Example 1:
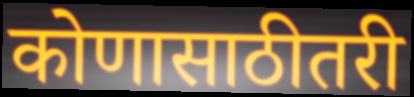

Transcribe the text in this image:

कोणासाठीतरी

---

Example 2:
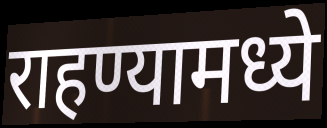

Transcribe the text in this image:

राहण्यामध्ये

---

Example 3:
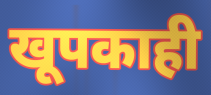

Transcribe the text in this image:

खूपकाही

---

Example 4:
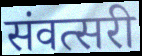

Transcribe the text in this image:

संवत्सरी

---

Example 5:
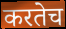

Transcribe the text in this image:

करतेच